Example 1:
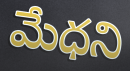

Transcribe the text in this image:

మేధని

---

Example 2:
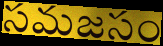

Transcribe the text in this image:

సమజసం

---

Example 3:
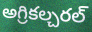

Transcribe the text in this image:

అగ్రికల్చరల్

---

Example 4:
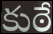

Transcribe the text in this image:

కుఠే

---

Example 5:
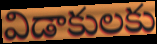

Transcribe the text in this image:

విడాకులకు